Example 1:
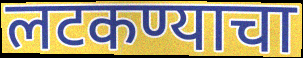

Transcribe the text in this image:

लटकण्याचा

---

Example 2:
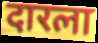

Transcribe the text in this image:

दारला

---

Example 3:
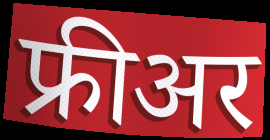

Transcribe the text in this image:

फ्रीअर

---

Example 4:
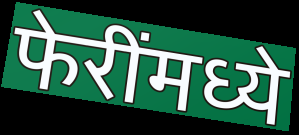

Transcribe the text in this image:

फेरींमध्ये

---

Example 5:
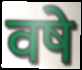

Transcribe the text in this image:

वषे